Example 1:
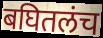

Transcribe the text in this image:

बघितलंच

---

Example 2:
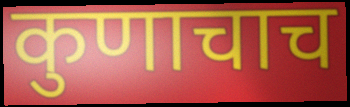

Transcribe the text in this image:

कुणाचाच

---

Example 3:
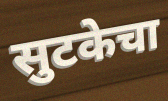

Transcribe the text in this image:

सुटकेचा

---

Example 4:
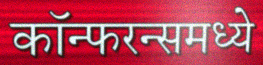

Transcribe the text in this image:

कॉन्फरन्समध्ये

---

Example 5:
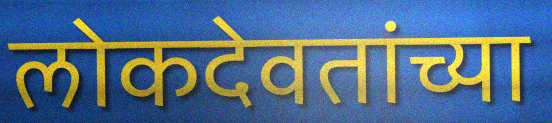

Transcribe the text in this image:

लोकदेवतांच्या